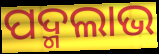
ପଦ୍ମଲାଭ